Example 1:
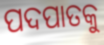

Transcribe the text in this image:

ପଦପାତକୁ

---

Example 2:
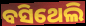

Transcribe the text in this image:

ବସିଥେଲି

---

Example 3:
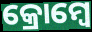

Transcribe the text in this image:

କ୍ରୋମ୍ବେ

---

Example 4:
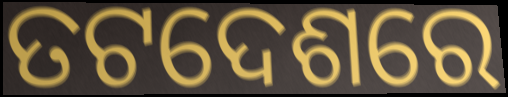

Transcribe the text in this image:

ତଟଦେଶରେ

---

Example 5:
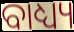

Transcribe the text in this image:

ବାଧ୍ୟ୍ୟ